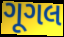
ગૂગલ